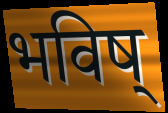
भविष्